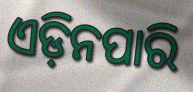
ଏଡ଼ିନପାରି